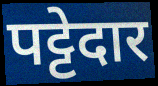
पट्टेदार